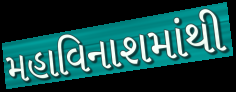
મહાવિનાશમાંથી